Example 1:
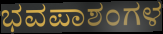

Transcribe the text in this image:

ಭವಪಾಶಂಗಳ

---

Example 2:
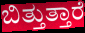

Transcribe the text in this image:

ಬಿತ್ತುತ್ತಾರೆ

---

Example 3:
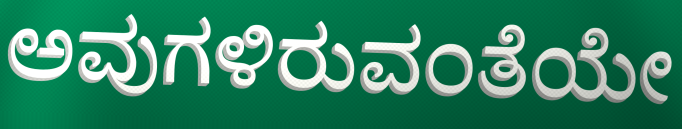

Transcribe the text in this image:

ಅವುಗಳಿರುವಂತೆಯೇ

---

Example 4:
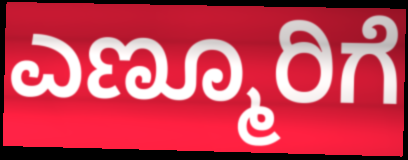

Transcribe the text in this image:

ಎಣ್ಮೂರಿಗೆ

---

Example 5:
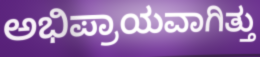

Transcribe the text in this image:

ಅಭಿಪ್ರಾಯವಾಗಿತ್ತು